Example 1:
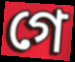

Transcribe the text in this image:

গে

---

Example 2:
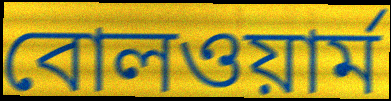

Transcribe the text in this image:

বোলওয়ার্ম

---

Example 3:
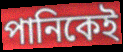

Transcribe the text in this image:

পানিকেই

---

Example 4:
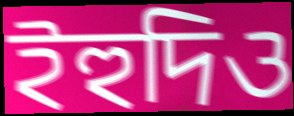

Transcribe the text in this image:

ইহুদিও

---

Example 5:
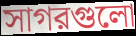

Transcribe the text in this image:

সাগরগুলো